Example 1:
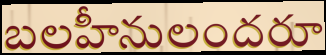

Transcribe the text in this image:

బలహీనులందరూ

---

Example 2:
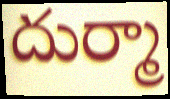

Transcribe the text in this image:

దుర్మా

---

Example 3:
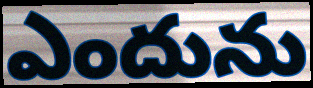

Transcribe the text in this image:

ఎందును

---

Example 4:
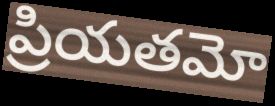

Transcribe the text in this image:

ప్రియతమో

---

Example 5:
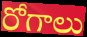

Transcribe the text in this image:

రోగాలు